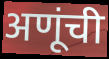
अणूंची